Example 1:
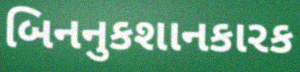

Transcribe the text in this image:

બિનનુકશાનકારક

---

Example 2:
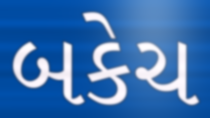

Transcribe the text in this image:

બકેચ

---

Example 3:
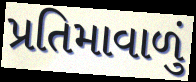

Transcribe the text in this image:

પ્રતિમાવાળું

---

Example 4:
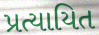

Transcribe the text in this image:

પ્રત્યાયિત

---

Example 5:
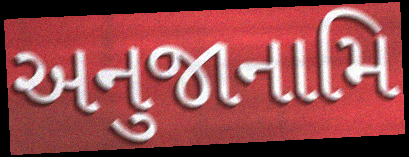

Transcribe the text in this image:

અનુજાનામિ